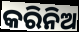
କରିନିଅ